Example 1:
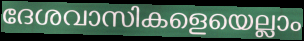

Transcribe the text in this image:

ദേശവാസികളെയെല്ലാം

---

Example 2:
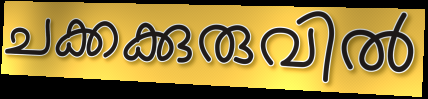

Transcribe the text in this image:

ചക്കക്കുരുവിൽ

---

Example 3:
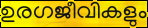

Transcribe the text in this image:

ഉരഗജീവികളും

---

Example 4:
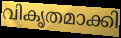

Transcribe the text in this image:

വികൃതമാക്കി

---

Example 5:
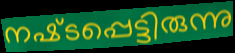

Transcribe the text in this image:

നഷ്‌ടപ്പെട്ടിരുന്നു